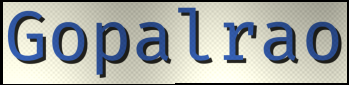
Gopalrao